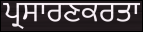
ਪ੍ਰਸਾਰਣਕਰਤਾ